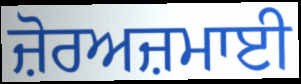
ਜ਼ੋਰਅਜ਼ਮਾਈ